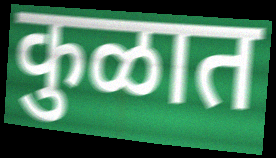
कुळात